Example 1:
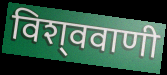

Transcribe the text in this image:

विश्ववाणी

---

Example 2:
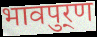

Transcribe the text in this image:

भावपुर्ण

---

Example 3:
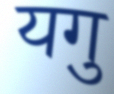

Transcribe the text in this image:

यगु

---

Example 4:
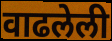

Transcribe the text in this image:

वाढलेली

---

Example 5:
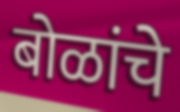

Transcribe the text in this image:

बोळांचे